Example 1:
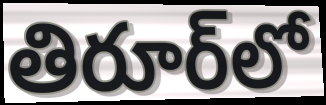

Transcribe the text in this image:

తిరూర్‌లో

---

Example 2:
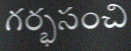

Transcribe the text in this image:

గర్భసంచి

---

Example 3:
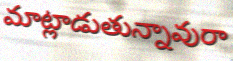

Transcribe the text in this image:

మాట్లాడుతున్నావురా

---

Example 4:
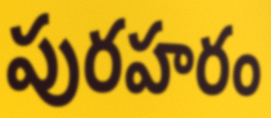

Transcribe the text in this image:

పురహరం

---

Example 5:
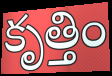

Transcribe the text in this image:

కృత్తిం